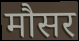
मौसर